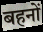
बहनों